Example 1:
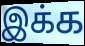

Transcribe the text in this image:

இக்க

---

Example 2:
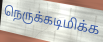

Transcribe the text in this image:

நெருக்கடிமிக்க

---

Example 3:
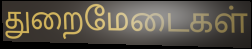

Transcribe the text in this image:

துறைமேடைகள்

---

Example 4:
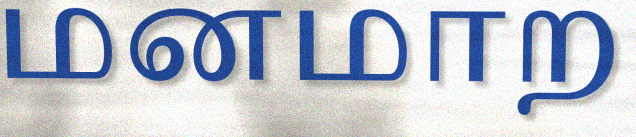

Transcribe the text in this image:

மனமாற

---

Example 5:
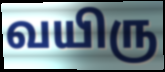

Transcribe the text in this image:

வயிரு